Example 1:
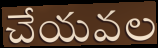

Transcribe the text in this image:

చేయవల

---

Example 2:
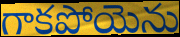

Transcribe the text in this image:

గాకపోయెను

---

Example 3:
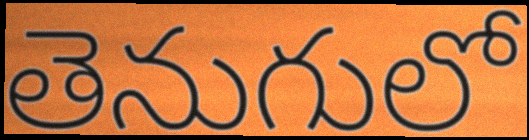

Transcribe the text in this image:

తెనుగులో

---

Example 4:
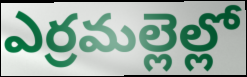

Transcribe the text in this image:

ఎర్రమల్లెల్లో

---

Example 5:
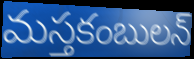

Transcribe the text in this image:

మస్తకంబులన్